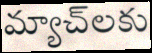
మ్యాచ్‌లకు